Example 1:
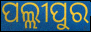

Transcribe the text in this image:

ପଲ୍ଲୀପୁର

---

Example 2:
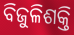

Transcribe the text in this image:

ବିଜୁଳିଶକ୍ତି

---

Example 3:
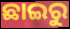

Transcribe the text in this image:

ଛାଇରୁ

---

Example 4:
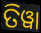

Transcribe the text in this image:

ତିୱା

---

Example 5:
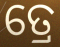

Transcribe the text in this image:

ତ୍ରେ